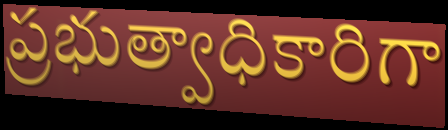
ప్రభుత్వాధికారిగా